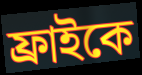
ফ্রাইকে